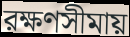
রক্ষণসীমায়